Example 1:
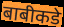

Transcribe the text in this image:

बाबीकडे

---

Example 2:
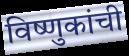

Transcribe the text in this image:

विष्णुकांची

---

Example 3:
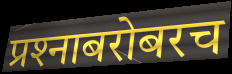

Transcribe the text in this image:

प्रश्‍नाबरोबरच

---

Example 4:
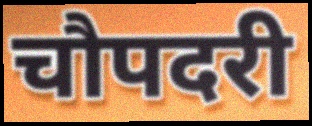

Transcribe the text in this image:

चौपदरी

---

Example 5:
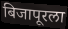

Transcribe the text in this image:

बिजापूरला